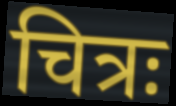
चित्रः